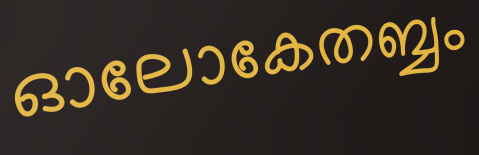
ഓലോകേതബ്ബം